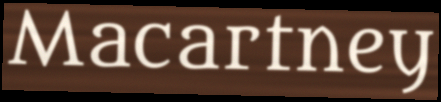
Macartney